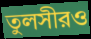
তুলসীরও